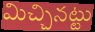
మిచ్చినట్టు